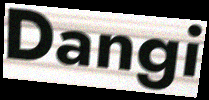
Dangi